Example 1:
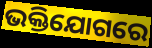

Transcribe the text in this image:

ଭକ୍ତିଯୋଗରେ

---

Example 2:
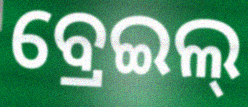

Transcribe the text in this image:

ବ୍ରେଇଲ୍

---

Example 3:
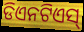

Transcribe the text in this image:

ଡିଏନଟିଏସ୍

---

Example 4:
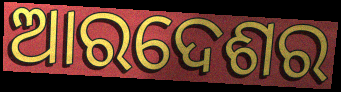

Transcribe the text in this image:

ଆରଦେଶର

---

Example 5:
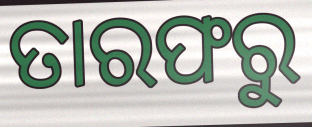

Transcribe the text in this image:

ତାରଫରୁ